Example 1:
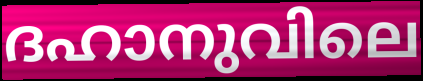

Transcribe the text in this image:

ദഹാനുവിലെ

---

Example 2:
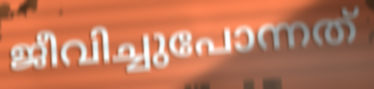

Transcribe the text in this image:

ജീവിച്ചുപോന്നത്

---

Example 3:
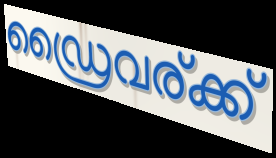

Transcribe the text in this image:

ഡ്രൈവര്ക്ക്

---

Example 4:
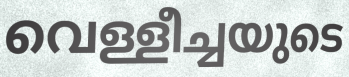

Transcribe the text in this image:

വെള്ളീച്ചയുടെ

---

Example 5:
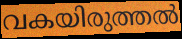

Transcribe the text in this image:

വകയിരുത്തൽ